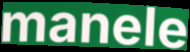
manele